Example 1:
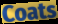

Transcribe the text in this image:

Coats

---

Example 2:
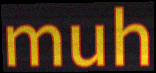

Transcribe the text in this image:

muh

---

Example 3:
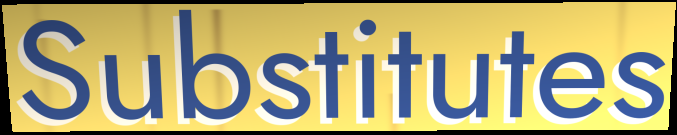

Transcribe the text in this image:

Substitutes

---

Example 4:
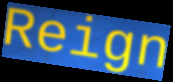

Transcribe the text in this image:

Reign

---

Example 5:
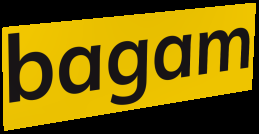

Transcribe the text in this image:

bagam